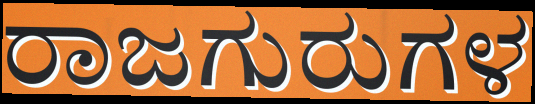
ರಾಜಗುರುಗಳ